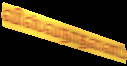
விஸ்வநாதனைப்